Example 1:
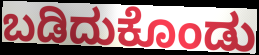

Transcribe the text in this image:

ಬಡಿದುಕೊಂಡು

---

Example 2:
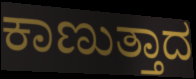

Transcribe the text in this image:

ಕಾಣುತ್ತಾದ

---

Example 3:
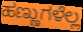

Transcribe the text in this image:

ಹಣ್ಣುಗಳೆಲ್ಲ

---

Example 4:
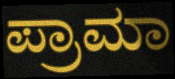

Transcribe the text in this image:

ಪ್ರಾಮಾ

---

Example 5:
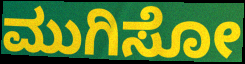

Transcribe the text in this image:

ಮುಗಿಸೋ